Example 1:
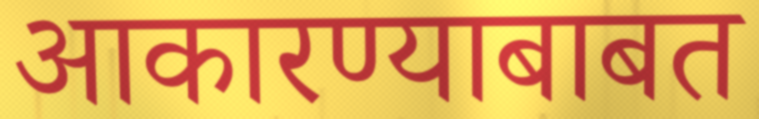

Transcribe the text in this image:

आकारण्याबाबत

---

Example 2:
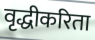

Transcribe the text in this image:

वृद्धीकरिता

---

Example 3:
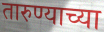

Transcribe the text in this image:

तारुण्याच्या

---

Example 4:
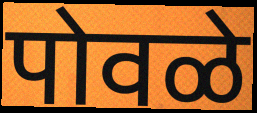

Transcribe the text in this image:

पोवळे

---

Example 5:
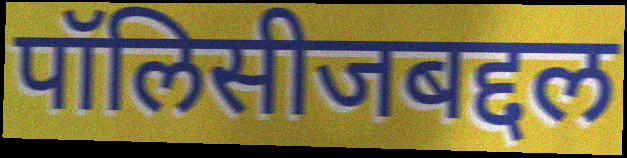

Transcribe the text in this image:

पॉलिसीजबद्दल